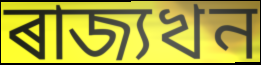
ৰাজ্যখন